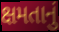
ક્ષમતાનું